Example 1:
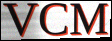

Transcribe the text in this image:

VCM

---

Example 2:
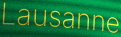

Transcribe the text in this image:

Lausanne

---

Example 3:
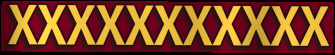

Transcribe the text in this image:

XXXXXXXXXXX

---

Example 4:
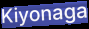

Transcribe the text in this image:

Kiyonaga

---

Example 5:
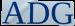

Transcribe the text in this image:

ADG